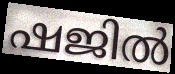
ഷജിൽ